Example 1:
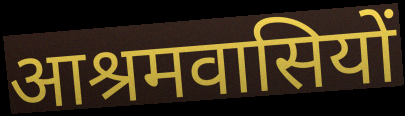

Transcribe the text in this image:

आश्रमवासियों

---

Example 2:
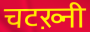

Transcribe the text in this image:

चटख़्नी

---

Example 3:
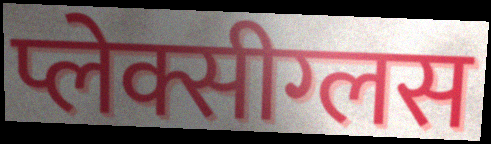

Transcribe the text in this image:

प्लेक्सीग्लस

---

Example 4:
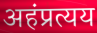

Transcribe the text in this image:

अहंप्रत्यय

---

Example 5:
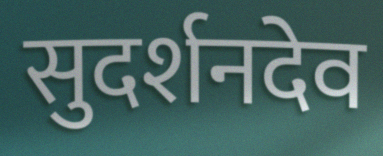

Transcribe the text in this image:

सुदर्शनदेव